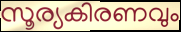
സൂര്യകിരണവും